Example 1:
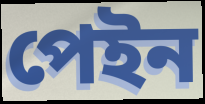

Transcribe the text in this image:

পেইন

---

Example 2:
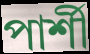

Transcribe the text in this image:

পার্শী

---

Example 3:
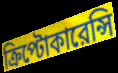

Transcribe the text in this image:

ক্রিপ্টোকারেন্সি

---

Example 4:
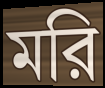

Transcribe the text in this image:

মরি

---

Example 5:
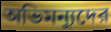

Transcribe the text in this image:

অভিমন্যুদের